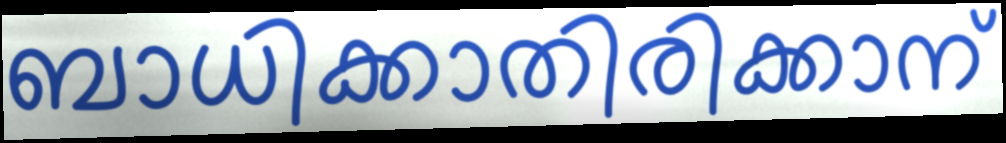
ബാധിക്കാതിരിക്കാന്